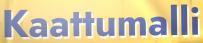
Kaattumalli